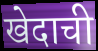
खेदाची